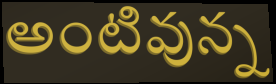
అంటివున్న